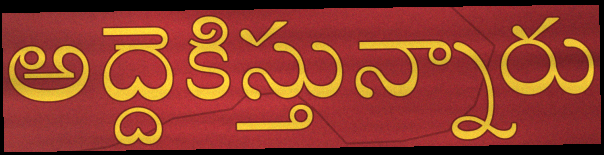
అద్దెకిస్తున్నారు